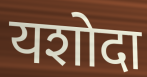
यशोदा